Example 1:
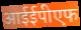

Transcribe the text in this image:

आईईपीएफ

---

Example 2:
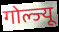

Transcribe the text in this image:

गोल्ज्यू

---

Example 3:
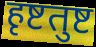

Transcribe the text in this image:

हृष्टतुष्ट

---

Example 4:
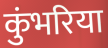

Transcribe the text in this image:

कुंभरिया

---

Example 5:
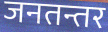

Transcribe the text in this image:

जनतन्तर